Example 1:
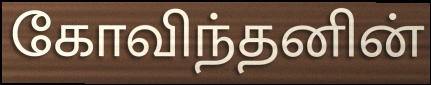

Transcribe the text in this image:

கோவிந்தனின்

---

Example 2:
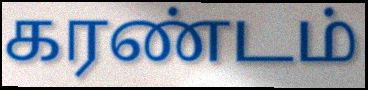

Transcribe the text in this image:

கரண்டம்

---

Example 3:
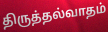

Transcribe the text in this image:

திருத்தல்வாதம்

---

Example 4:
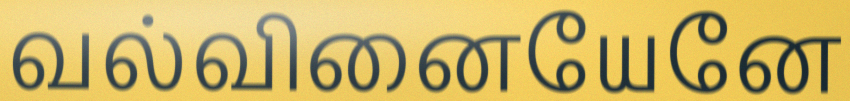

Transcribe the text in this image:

வல்வினையேனே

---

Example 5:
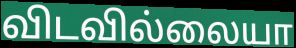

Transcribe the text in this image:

விடவில்லையா